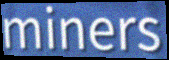
miners